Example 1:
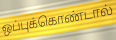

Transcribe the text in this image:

ஒப்புக்கொண்டால்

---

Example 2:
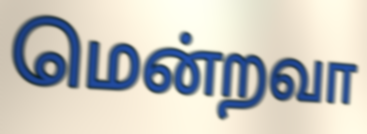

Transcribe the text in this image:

மென்றவா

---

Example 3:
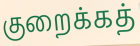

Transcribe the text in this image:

குறைக்கத்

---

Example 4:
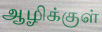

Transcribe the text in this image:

ஆழிக்குள்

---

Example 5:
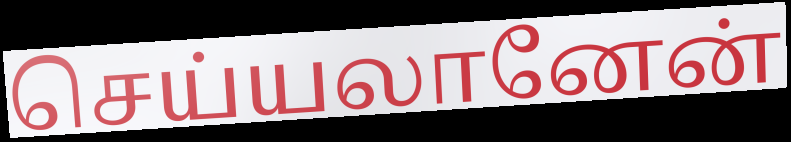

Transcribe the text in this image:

செய்யலானேன்